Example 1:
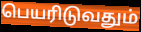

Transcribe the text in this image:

பெயரிடுவதும்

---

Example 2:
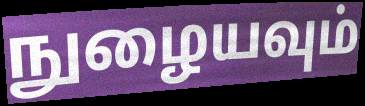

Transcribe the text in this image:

நுழையவும்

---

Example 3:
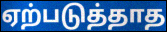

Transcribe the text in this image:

ஏற்படுத்தாத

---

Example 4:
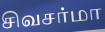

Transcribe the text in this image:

சிவசர்மா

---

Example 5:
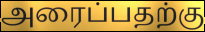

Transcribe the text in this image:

அரைப்பதற்கு